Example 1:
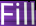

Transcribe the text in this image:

Fill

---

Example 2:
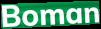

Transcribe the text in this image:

Boman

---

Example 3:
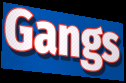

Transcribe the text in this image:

Gangs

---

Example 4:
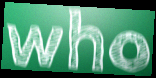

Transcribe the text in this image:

who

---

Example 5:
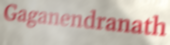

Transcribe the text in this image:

Gaganendranath